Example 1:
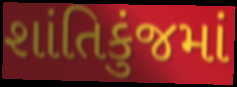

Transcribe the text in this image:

શાંતિકુંજમાં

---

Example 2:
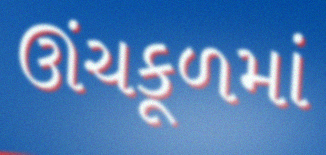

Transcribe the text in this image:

ઊંચકૂળમાં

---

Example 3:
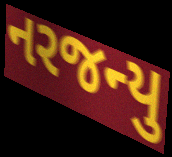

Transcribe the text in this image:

નરજન્યુ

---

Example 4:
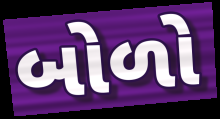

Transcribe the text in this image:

બોળો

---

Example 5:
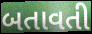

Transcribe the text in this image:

બતાવતી